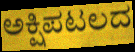
ಅಕ್ಷಿಪಟಲದ